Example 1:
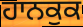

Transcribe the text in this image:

ਹਾਨਕੁਕ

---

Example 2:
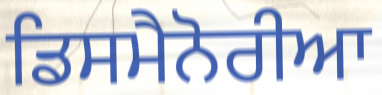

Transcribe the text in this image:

ਡਿਸਮੈਨੋਰੀਆ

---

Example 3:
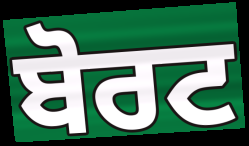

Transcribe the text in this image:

ਬੋਰਟ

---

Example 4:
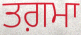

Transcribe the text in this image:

ਤਗ਼ਮਾ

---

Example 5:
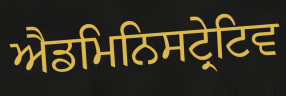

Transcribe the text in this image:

ਐਡਮਿਨਿਸਟ੍ਰੇਟਿਵ